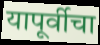
यापूर्वीचा